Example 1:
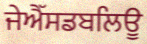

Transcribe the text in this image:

ਜੇਐੱਸਡਬਲਿਊ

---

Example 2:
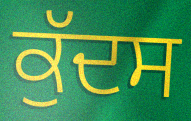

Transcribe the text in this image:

ਕੁੱਦਸ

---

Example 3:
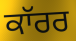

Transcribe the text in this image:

ਕਾੱਰਰ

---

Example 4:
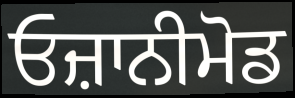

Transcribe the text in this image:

ਓਜ਼ਾਨੀਮੋਡ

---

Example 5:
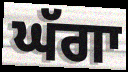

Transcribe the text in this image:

ਘੱਗਾ